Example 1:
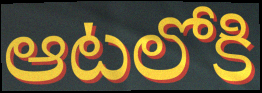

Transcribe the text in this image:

ఆటలోకి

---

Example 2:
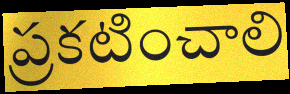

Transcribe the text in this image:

ప్రకటించాలి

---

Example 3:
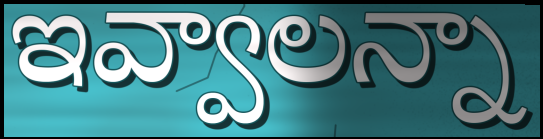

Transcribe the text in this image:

ఇవ్వాలన్నా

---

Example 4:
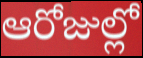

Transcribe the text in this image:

ఆరోజుల్లో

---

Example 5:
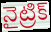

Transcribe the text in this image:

నైట్రిక్